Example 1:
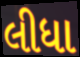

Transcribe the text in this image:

લીધા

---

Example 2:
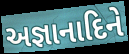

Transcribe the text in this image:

અજ્ઞાનાદિને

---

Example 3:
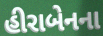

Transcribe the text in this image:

હીરાબેનના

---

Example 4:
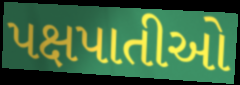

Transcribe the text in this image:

પક્ષપાતીઓ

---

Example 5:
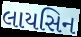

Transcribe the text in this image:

લાયસિન